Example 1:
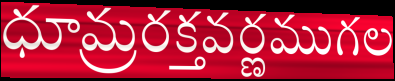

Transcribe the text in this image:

ధూమ్రరక్తవర్ణముగల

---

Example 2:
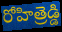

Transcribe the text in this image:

రోహిత్రెడ్డి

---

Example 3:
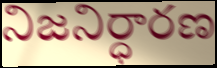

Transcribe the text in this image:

నిజనిర్ధారణ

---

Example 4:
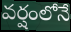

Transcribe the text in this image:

వర్షంలోనే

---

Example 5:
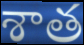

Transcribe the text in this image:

శాత